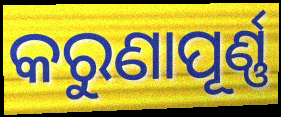
କରୁଣାପୂର୍ଣ୍ଣ